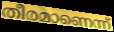
തീരമാണെന്ന്